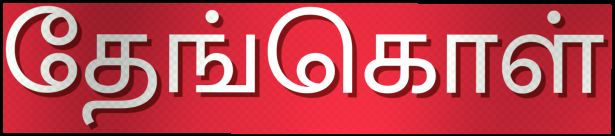
தேங்கொள்